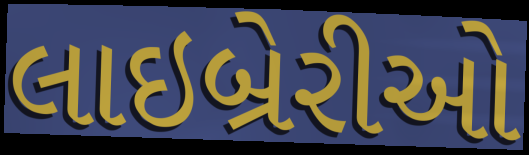
લાઇબ્રેરીઓ